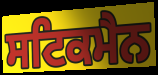
ਸਟਿਕਮੈਨ